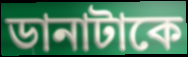
ডানাটাকে